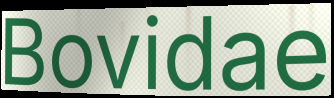
Bovidae